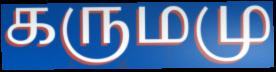
கருமமு